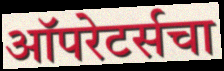
ऑपरेटर्सचा